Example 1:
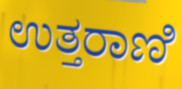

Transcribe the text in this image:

ಉತ್ತರಾಣಿ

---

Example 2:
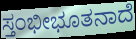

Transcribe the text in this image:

ಸ್ತಂಭೀಭೂತನಾದೆ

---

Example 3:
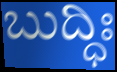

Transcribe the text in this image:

ಬುದ್ಧಿಃ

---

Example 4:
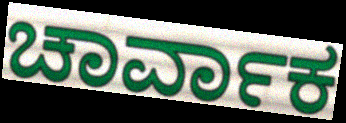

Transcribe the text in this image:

ಚಾರ್ವಾಕ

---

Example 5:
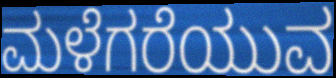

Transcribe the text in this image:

ಮಳೆಗರೆಯುವ